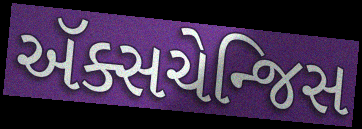
ઍક્સચેન્જિસ